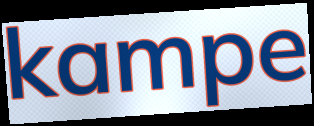
kampe